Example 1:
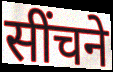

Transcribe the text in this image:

सींचने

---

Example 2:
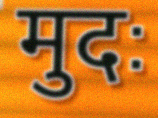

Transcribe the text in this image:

मुदः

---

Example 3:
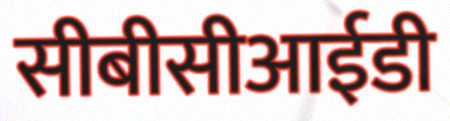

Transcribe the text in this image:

सीबीसीआईडी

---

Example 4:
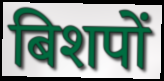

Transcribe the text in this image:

बिशपों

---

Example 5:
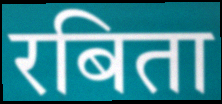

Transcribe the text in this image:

रबिता